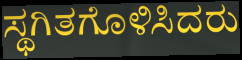
ಸ್ಥಗಿತಗೊಳಿಸಿದರು